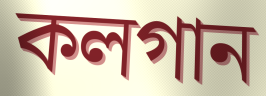
কলগান